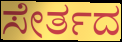
ಸೇರ್ತದ